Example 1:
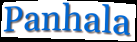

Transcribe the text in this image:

Panhala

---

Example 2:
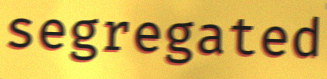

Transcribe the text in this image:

segregated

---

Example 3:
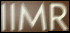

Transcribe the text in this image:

IIMR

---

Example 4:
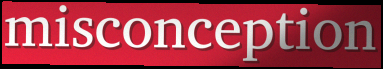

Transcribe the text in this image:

misconception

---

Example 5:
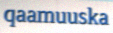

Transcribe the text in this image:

qaamuuska